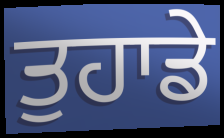
ਤੁਹਾਡੇ